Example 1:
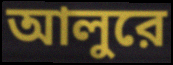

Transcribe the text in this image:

আলুরে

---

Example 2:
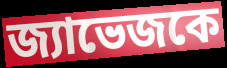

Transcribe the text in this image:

জ্যাভেজকে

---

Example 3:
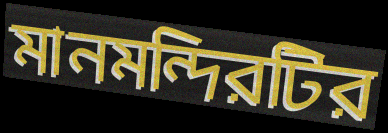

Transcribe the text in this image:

মানমন্দিরটির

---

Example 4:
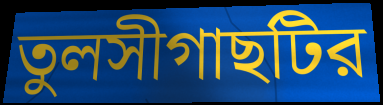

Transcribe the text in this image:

তুলসীগাছটির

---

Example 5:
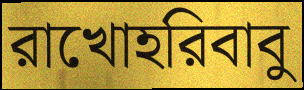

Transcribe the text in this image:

রাখোহরিবাবু